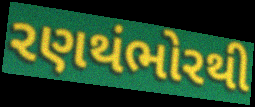
રણથંભોરથી